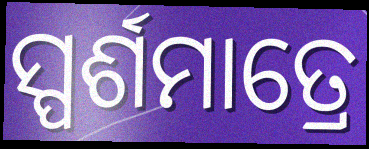
ସ୍ପର୍ଶମାତ୍ରେ